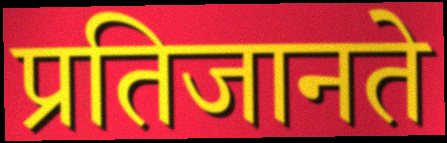
प्रतिजानते